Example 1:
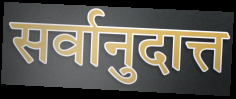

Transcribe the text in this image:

सर्वानुदात्त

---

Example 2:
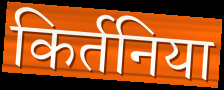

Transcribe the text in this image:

किर्तनिया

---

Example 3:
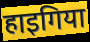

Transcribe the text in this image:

हाइगिया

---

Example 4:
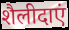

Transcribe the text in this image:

शैलीदाएं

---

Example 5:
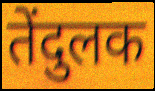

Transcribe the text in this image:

तेंदुलक